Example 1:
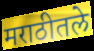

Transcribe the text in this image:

मराठीतले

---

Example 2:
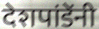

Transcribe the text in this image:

देशपांडेंनी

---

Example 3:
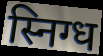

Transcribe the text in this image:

स्निग्ध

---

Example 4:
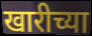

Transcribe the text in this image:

खारीच्या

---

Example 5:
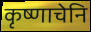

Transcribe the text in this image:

कृष्णाचेनि